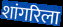
शांगरिला